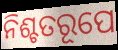
ନିଶ୍ଚତରୂପେ